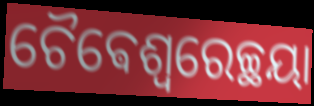
ଚୈଵେଶ୍ଵରେଚ୍ଛୟା